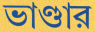
ভাণ্ডার